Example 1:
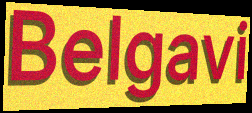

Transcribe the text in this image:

Belgavi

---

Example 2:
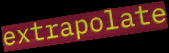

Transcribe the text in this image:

extrapolate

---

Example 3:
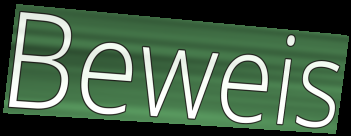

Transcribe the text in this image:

Beweis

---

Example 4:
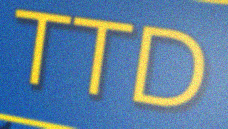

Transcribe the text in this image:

TTD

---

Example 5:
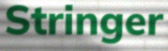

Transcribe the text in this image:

Stringer